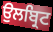
ਉਲਬ੍ਰਿਟ